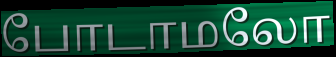
போடாமலோ